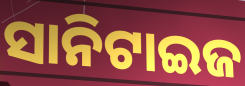
ସାନିଟାଇଜ